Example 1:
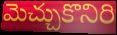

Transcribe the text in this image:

మెచ్చుకొనిరి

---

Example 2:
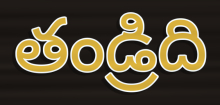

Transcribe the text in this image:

తండ్రిది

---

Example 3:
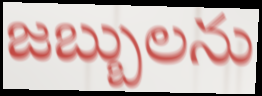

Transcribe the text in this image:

జబ్బులను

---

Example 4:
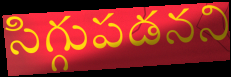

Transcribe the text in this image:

సిగ్గుపడనని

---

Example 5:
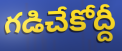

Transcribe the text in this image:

గడిచేకోద్దీ